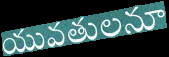
యువతులనూ